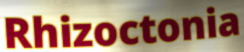
Rhizoctonia